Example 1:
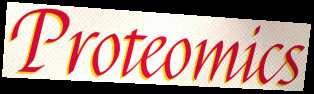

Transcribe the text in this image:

Proteomics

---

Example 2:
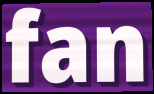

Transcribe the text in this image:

fan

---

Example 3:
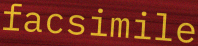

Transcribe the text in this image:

facsimile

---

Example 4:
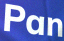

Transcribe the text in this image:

Pan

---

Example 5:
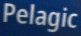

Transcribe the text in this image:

Pelagic